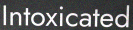
Intoxicated